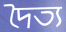
দৈত্য